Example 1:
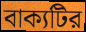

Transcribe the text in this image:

বাক্যটির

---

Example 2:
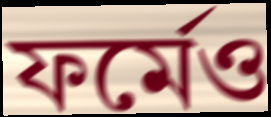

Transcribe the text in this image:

ফর্মেও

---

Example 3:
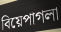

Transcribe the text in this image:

বিয়েপাগলা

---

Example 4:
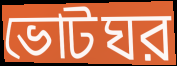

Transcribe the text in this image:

ভোটঘর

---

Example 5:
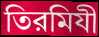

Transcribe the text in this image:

তিরমিযী